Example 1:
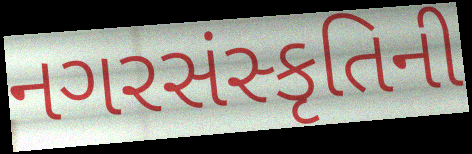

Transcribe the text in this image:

નગરસંસ્કૃતિની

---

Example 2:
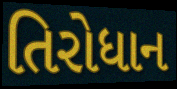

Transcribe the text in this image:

તિરોધાન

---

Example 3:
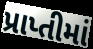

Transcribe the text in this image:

પ્રાપ્તીમાં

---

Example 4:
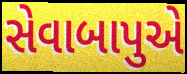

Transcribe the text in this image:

સેવાબાપુએ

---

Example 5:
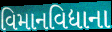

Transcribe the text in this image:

વિમાનવિદ્યાના